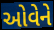
ઓવેને